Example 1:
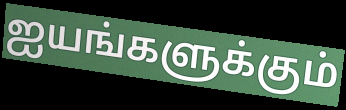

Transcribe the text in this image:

ஐயங்களுக்கும்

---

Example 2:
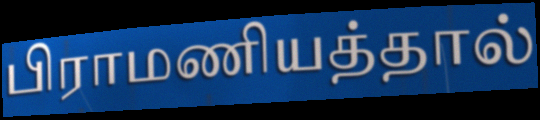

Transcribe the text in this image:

பிராமணியத்தால்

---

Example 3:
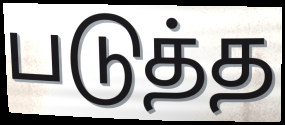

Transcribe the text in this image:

படுத்த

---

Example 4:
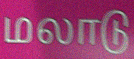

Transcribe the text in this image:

மலாடு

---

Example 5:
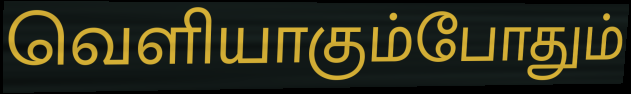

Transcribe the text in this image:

வெளியாகும்போதும்